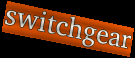
switchgear